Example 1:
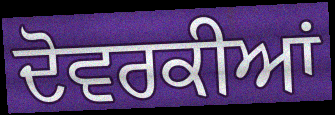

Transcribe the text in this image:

ਦੋਵਰਕੀਆਂ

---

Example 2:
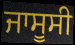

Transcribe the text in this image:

ਜਾਸੂਸੀ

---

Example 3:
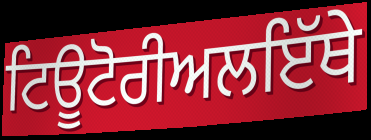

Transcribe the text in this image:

ਟਿਊਟੋਰੀਅਲਇੱਥੇ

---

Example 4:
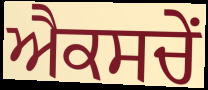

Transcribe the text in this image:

ਐਕਸਚੇਂ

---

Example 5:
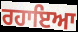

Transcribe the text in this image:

ਰਹਾਇਆ